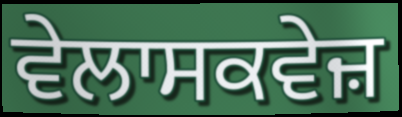
ਵੇਲਾਸਕਵੇਜ਼